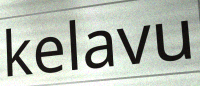
kelavu